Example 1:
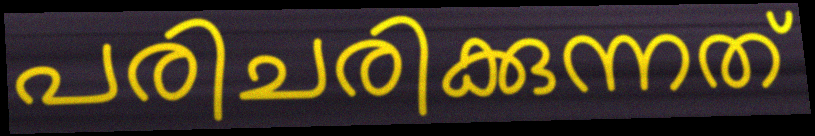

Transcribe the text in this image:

പരിചരിക്കുന്നത്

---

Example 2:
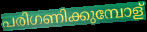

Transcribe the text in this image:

പരിഗണിക്കുമ്പോള്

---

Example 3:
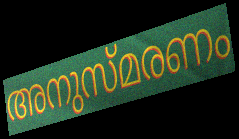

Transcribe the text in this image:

അനുസ്മരണം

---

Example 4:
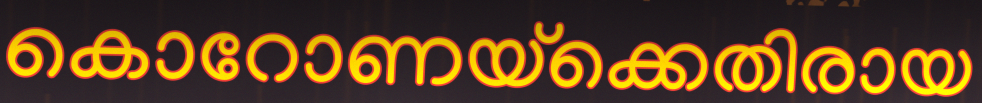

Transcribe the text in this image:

കൊറോണയ്‌ക്കെതിരായ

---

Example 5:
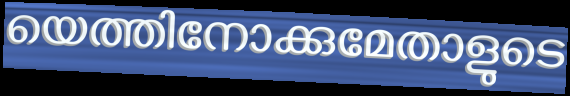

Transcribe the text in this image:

യെത്തിനോക്കുമേതാളുടെ